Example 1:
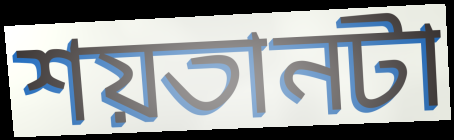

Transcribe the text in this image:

শয়তানটা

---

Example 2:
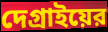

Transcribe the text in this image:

দেগ্রাইয়ের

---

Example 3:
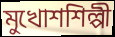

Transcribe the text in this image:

মুখোশশিল্পী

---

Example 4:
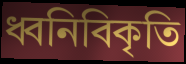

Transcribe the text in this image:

ধ্বনিবিকৃতি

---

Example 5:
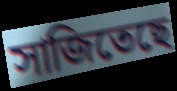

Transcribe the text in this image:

সাজিতেছে